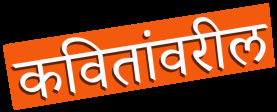
कवितांवरील